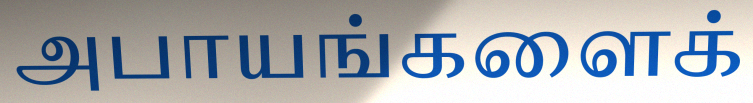
அபாயங்களைக்